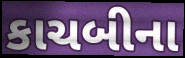
કાચબીના